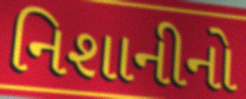
નિશાનીનો